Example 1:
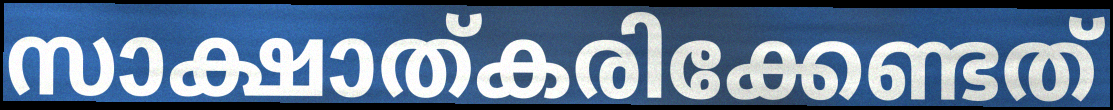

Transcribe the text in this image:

സാക്ഷാത്കരിക്കേണ്ടത്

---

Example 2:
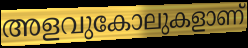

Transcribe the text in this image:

അളവുകോലുകളാണ്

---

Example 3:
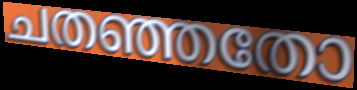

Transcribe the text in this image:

ചതഞ്ഞതോ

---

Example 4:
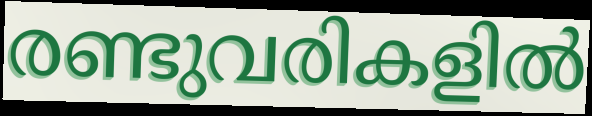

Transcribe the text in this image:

രണ്ടുവരികളിൽ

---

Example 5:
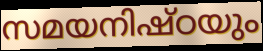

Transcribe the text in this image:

സമയനിഷ്ഠയും